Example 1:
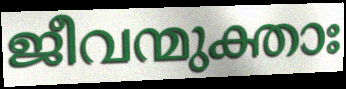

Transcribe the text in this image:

ജീവന്മുക്താഃ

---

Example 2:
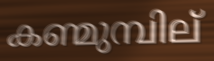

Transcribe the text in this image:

കണ്മുമ്പില്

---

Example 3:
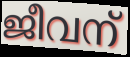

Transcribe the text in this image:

ജീവന്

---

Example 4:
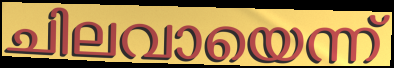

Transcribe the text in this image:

ചിലവായെന്ന്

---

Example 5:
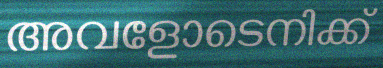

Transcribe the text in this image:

അവളോടെനിക്ക്